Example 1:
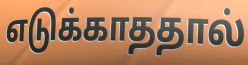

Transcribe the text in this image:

எடுக்காததால்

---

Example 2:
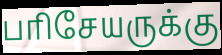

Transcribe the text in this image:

பரிசேயருக்கு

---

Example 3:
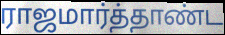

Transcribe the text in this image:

ராஜமார்த்தாண்ட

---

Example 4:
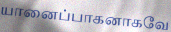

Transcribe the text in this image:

யானைப்பாகனாகவே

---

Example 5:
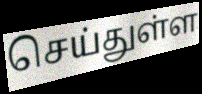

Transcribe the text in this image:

செய்துள்ள